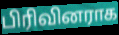
பிரிவினராக